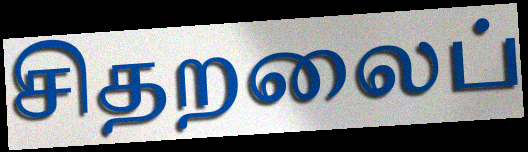
சிதறலைப்